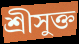
শ্রীসুক্ত